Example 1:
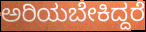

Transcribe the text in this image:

ಅರಿಯಬೇಕಿದ್ದರೆ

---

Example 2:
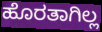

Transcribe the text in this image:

ಹೊರತಾಗಿಲ್ಲ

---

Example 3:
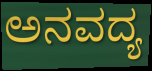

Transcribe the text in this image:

ಅನವದ್ಯ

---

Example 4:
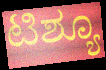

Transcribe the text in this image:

ಟಿಶ್ಯೂ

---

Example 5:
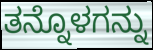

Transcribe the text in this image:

ತನ್ನೊಳಗನ್ನು